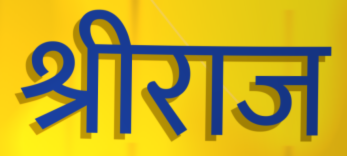
श्रीराज